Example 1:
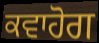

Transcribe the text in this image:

ਕਵਾਹੋਗ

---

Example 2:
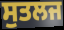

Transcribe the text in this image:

ਸੁਤਲਜ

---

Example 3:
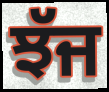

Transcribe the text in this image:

ਝੱਜ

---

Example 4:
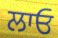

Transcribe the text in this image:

ਲਾਓ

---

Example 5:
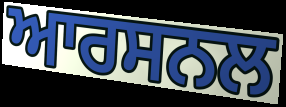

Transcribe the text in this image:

ਆਰਸਨਲ